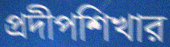
প্রদীপশিখার